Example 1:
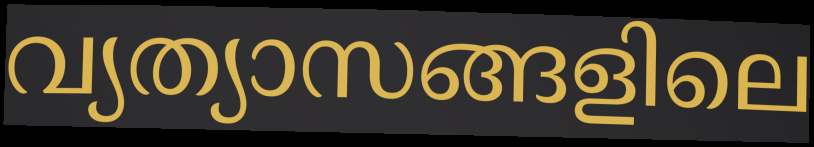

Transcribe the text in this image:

വ്യത്യാസങ്ങളിലെ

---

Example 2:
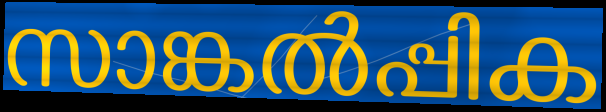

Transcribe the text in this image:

സാങ്കൽപ്പിക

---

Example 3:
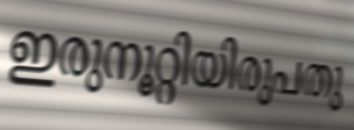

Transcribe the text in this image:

ഇരുനൂറ്റിയിരുപതു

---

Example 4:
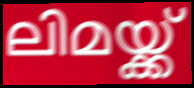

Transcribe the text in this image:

ലിമയ്ക്ക്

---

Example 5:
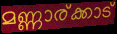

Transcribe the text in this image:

മണ്ണാര്ക്കാട്